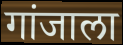
गांजाला